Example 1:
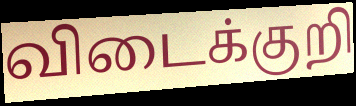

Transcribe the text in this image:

விடைக்குறி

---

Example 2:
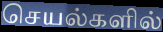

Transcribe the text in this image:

செயல்களில்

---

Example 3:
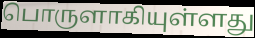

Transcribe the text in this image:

பொருளாகியுள்ளது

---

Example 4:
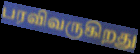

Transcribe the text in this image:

பரவிவருகிறது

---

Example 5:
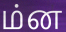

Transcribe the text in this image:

ம்ன